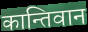
कान्तिवान